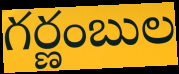
గర్ణంబుల